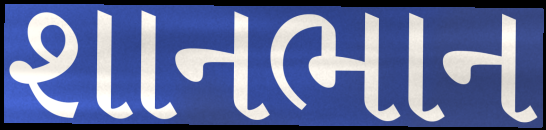
શાનભાન